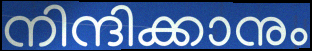
നിന്ദിക്കാനും